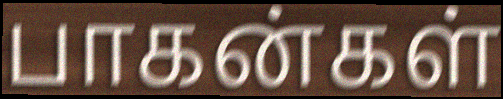
பாகன்கள்